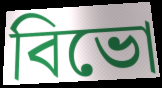
বিভো